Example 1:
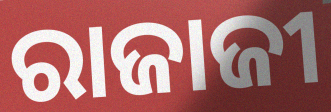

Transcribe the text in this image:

ରାଜାଜୀ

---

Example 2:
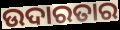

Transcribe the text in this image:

ଉଦାରତାର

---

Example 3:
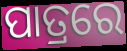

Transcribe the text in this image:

ପାତ୍ରରେ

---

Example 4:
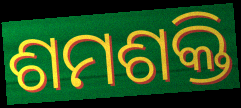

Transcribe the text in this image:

ଶମଶକ୍ତି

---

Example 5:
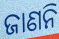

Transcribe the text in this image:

ଜାଣନି